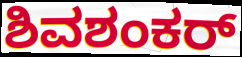
ಶಿವಶಂಕರ್